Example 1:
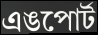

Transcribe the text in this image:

এঙপোর্ট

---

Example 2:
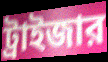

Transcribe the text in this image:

ট্রাইজার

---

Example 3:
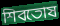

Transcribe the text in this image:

শিবতোষ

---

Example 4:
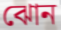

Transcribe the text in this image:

ঝোন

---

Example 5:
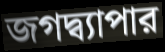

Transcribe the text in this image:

জগদ্ব্যাপার